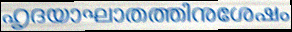
ഹൃദയാഘാതത്തിനുശേഷം